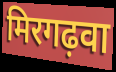
मिरगढ़वा